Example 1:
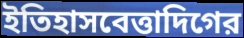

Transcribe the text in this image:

ইতিহাসবেত্তাদিগের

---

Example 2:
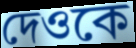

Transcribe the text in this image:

দেওকে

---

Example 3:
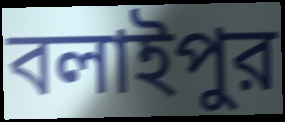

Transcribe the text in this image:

বলাইপুর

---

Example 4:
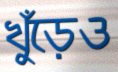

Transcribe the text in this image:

খুঁড়েও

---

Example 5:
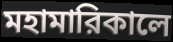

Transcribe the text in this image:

মহামারিকালে